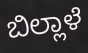
ಬಿಲ್ಲಾಳೆ